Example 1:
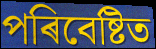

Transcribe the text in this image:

পৰিবেষ্টিত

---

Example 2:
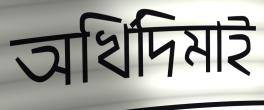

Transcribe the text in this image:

অৰ্খিদিমাই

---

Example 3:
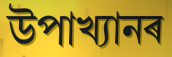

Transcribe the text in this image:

উপাখ্যানৰ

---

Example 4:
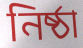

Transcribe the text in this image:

নিষ্ঠা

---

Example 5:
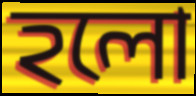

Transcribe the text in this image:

হলো